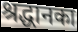
श्रद्धानका